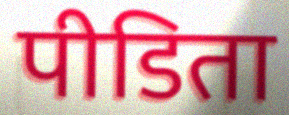
पीडिता